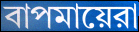
বাপমায়েরা